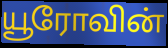
யூரோவின்